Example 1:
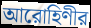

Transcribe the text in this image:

আরোহিণীর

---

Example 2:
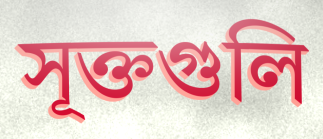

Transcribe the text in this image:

সূক্তগুলি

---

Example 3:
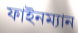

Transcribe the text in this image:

ফাইনম্যান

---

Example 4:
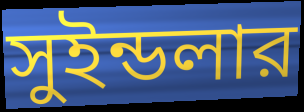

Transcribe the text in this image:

সুইন্ডলার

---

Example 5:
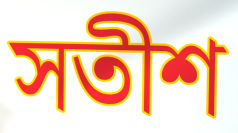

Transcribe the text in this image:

সতীশ